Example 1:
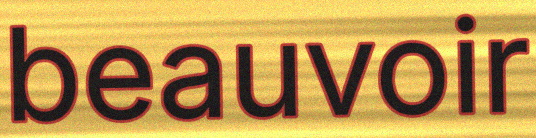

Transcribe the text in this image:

beauvoir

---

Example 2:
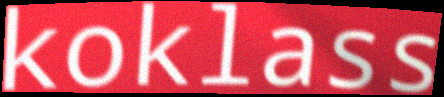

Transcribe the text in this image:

koklass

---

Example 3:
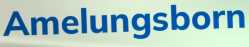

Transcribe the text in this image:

Amelungsborn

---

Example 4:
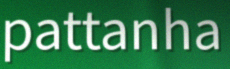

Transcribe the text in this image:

pattanha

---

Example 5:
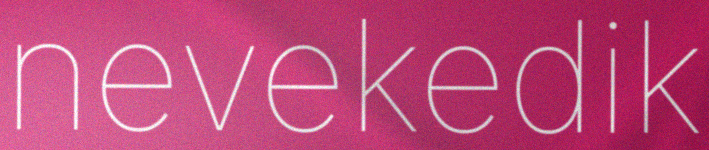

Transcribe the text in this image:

nevekedik